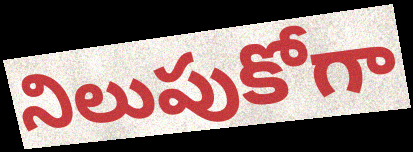
నిలుపుకోగా